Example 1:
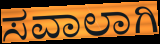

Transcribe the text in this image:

ಸವಾಲಾಗಿ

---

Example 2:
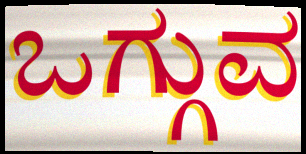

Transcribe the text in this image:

ಒಗ್ಗುವ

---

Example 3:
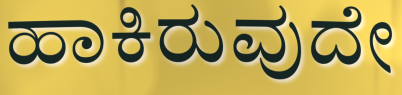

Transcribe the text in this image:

ಹಾಕಿರುವುದೇ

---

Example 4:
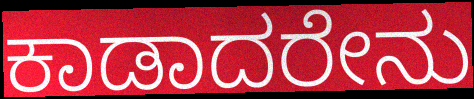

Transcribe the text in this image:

ಕಾಡಾದರೇನು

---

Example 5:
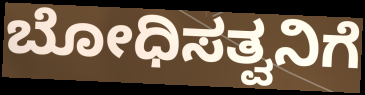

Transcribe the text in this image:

ಬೋಧಿಸತ್ವನಿಗೆ